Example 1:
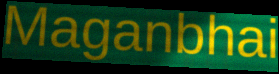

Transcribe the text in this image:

Maganbhai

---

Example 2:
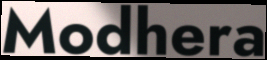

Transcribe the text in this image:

Modhera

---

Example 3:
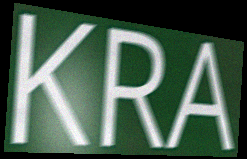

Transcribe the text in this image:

KRA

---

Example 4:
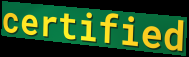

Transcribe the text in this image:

certified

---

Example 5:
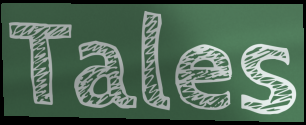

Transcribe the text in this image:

Tales